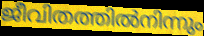
ജീവിതത്തിൽനിന്നും